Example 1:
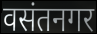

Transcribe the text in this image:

वसंतनगर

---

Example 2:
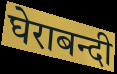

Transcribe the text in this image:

घेराबन्दी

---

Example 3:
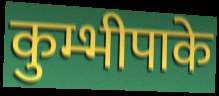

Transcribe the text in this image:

कुम्भीपाके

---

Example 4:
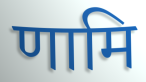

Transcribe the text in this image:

णामि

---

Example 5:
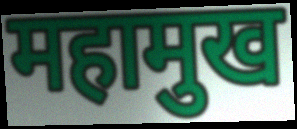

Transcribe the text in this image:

महामुख